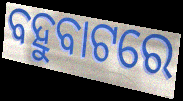
ବହୁବାଟରେ